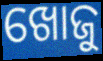
ଖୋଜୁ